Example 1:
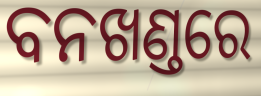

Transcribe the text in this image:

ବନଖଣ୍ଡରେ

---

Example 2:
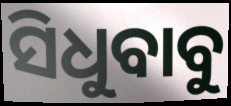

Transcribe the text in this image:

ସିଧୁବାବୁ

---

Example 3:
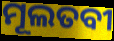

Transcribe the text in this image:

ମୂଲତବୀ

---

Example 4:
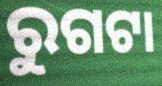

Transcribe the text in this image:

ରୁଗଟା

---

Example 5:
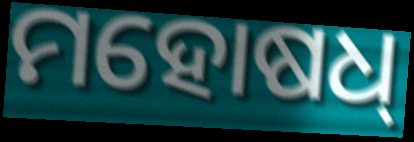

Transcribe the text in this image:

ମହୋଷଧ୍